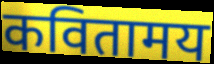
कवितामय